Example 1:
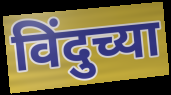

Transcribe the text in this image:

विंदुच्या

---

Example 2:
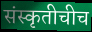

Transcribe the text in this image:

संस्कृतीचीच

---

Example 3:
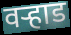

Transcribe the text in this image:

वऱ्हाड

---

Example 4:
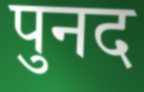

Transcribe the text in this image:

पुनद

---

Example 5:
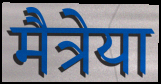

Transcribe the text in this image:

मैत्रेया